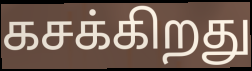
கசக்கிறது